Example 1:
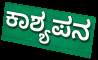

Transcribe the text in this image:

ಕಾಶ್ಯಪನ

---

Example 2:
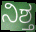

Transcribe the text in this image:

ನಿಶ್ತ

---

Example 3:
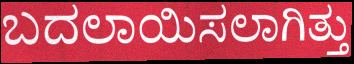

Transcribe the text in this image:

ಬದಲಾಯಿಸಲಾಗಿತ್ತು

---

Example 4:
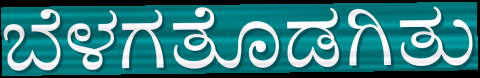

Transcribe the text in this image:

ಬೆಳಗತೊಡಗಿತು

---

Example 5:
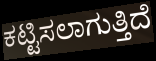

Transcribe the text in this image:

ಕಟ್ಟಿಸಲಾಗುತ್ತಿದೆ